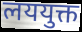
लययुक्त